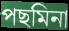
পছমিনা